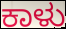
ಕಾಳು